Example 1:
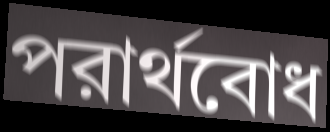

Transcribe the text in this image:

পরার্থবোধ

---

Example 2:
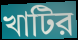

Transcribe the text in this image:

খাটির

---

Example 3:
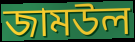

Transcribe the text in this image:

জামউল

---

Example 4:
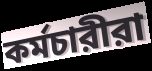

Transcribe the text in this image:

কর্মচারীরা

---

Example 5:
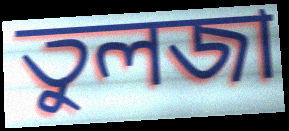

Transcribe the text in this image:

তুলজা